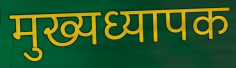
मुख्यध्यापक